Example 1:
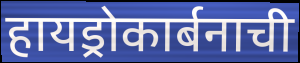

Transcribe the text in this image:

हायड्रोकार्बनाची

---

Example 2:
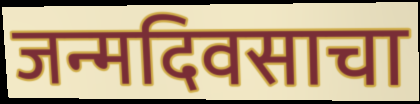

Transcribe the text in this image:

जन्मदिवसाचा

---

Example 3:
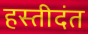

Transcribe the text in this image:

हस्तीदंत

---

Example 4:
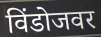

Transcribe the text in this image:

विंडोजवर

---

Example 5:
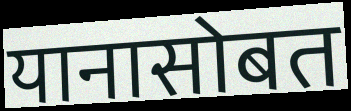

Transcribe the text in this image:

यानासोबत